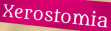
Xerostomia